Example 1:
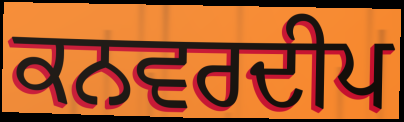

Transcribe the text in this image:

ਕਨਵਰਦੀਪ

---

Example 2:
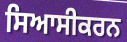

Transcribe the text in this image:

ਸਿਆਸੀਕਰਨ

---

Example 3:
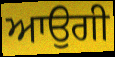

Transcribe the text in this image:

ਆਉਗੀ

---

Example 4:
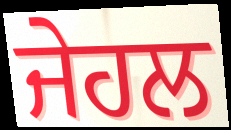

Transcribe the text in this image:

ਜੇਹਲ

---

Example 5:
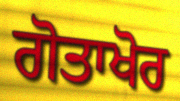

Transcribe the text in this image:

ਗੋਤਾਖੋਰ